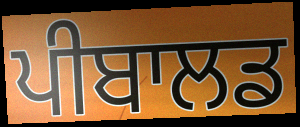
ਪੀਬਾਲਡ